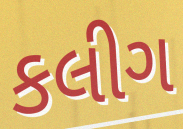
કલીગ